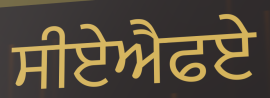
ਸੀਏਐਫਏ